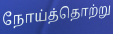
நோய்த்தொற்று